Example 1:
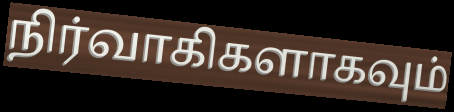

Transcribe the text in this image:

நிர்வாகிகளாகவும்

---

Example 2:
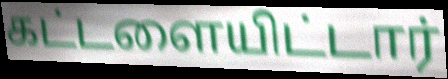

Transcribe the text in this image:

கட்டளையிட்டார்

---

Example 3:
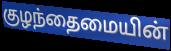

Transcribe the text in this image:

குழந்தைமையின்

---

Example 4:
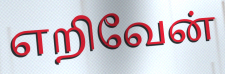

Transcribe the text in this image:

எறிவேன்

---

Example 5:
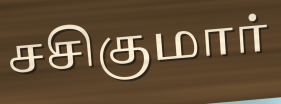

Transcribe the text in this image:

சசிகுமார்